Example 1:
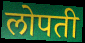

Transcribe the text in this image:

लोपती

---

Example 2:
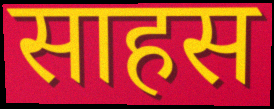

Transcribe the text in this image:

साहस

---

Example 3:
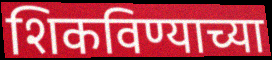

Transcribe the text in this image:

शिकविण्याच्या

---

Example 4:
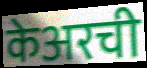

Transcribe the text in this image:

केअरची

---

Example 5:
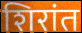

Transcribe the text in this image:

शिरांत